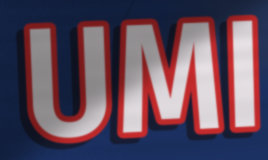
UMI